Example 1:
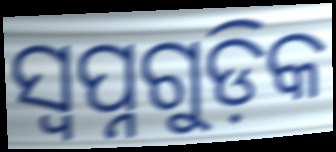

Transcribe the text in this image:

ସ୍ଵପ୍ନଗୁଡ଼ିକ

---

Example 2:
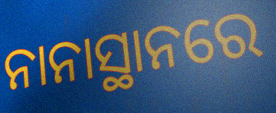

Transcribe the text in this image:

ନାନାସ୍ଥାନରେ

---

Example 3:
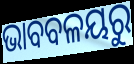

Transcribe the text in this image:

ଭାବବଳୟରୁ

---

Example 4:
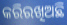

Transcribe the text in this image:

କରିରଖିଅଛି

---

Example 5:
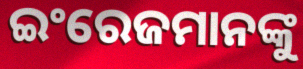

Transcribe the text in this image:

ଇଂରେଜମାନଙ୍କୁ